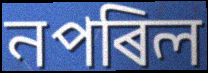
নপৰিল